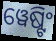
ୱେଷ୍ଟିଂ